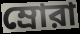
ম্রোরা